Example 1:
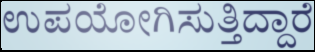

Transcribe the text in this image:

ಉಪಯೋಗಿಸುತ್ತಿದ್ದಾರೆ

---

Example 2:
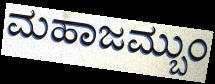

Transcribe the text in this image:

ಮಹಾಜಮ್ಬುಂ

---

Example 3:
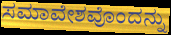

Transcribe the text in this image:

ಸಮಾವೇಶವೊಂದನ್ನು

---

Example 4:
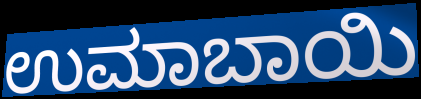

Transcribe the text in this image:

ಉಮಾಬಾಯಿ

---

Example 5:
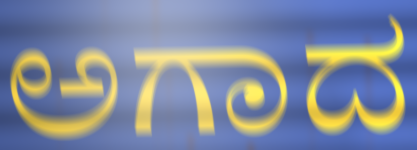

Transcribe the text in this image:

ಅಗಾದ